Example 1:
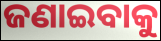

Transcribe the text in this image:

ଜଣାଇବାକୁ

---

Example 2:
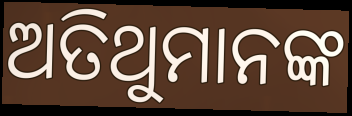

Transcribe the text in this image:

ଅତିଥୁମାନଙ୍କ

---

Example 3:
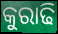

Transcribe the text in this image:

କୁରାଢି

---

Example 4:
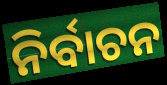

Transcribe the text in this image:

ନିର୍ବାଚନ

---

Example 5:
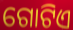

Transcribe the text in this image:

ଗୋଟିଏ